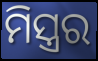
ମିସ୍ତ୍ରର